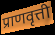
प्राणवृत्ती